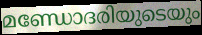
മണ്ഡോദരിയുടെയും